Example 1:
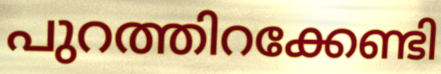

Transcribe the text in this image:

പുറത്തിറക്കേണ്ടി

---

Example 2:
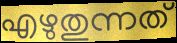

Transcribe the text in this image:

എഴുതുന്നത്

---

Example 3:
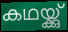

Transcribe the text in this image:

കഥയ്ക്കു്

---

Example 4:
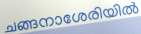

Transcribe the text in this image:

ചങ്ങനാശേരിയിൽ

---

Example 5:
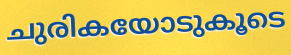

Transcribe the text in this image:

ചുരികയോടുകൂടെ